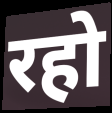
रहो